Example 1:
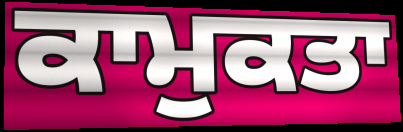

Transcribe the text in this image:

ਕਾਮੁਕਤਾ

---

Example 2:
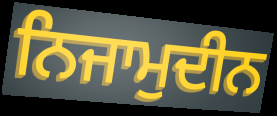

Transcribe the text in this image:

ਨਿਜਾਮੁਦੀਨ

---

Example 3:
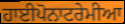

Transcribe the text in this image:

ਹਾਈਪੋਨਾਟਰੇਮੀਆ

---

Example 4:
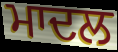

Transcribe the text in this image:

ਮਾਦਲ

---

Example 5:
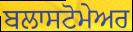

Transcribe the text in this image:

ਬਲਾਸਟੋਮੇਅਰ